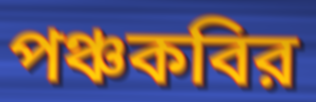
পঞ্চকবির